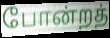
போன்றத்